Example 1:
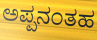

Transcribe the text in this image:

ಅಪ್ಪನಂತಹ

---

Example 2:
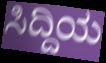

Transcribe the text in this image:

ಸಿದ್ದಿಯ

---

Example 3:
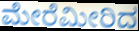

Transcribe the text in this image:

ಮೇರೆಮೀರಿದ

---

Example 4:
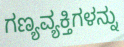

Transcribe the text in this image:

ಗಣ್ಯವ್ಯಕ್ತಿಗಳನ್ನು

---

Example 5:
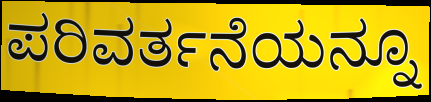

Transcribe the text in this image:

ಪರಿವರ್ತನೆಯನ್ನೂ